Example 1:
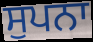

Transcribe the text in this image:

ਸੁਪਨਾ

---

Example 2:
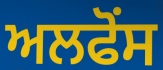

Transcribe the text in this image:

ਅਲਫੋਂਸ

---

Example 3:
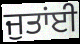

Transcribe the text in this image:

ਜੁਤਾਂਈ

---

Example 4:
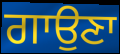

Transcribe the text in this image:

ਗਾਉਣਾ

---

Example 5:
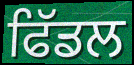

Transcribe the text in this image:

ਫਿੱਡਲ